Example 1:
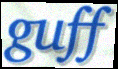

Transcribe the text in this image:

guff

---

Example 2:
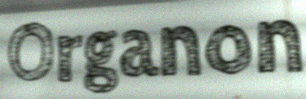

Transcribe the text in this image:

Organon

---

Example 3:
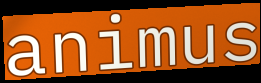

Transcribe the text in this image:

animus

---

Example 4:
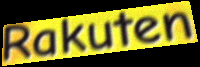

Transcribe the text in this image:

Rakuten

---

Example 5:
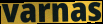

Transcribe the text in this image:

varnas